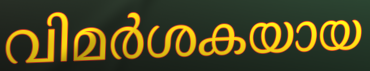
വിമർശകയായ